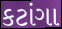
કટાંગા